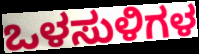
ಒಳಸುಳಿಗಳ